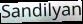
Sandilyan